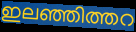
ഇലഞ്ഞിത്തറ